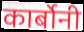
कार्बोनी